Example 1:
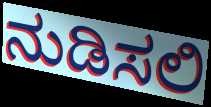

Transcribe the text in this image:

ನುಡಿಸಲಿ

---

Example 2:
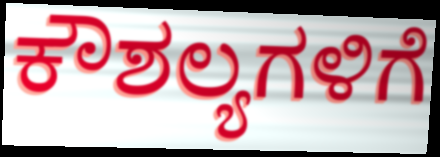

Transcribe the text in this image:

ಕೌಶಲ್ಯಗಳಿಗೆ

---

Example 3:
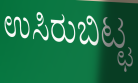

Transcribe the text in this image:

ಉಸಿರುಬಿಟ್ಟ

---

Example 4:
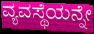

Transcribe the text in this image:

ವ್ಯವಸ್ಥೆಯನ್ನೇ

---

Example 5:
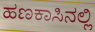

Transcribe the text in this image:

ಹಣಕಾಸಿನಲ್ಲಿ